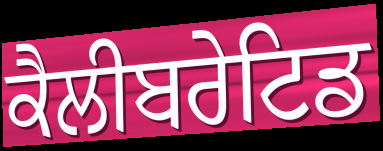
ਕੈਲੀਬਰੇਟਿਡ